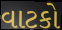
વાટકો